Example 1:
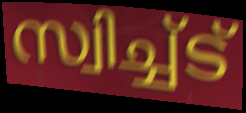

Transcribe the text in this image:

സ്വിച്ച്ട്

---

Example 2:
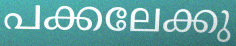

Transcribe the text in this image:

പക്കലേക്കു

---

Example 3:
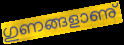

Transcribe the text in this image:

ഗുണങ്ങളാണു്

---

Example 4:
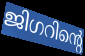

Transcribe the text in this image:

ജിഗറിന്റെ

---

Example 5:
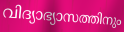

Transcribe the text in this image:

വിദ്യാഭ്യാസത്തിനും